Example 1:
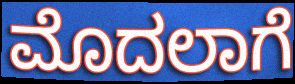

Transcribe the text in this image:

ಮೊದಲಾಗೆ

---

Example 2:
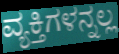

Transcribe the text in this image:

ವ್ಯಕ್ತಿಗಳನ್ನಲ್ಲ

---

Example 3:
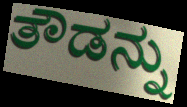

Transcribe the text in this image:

ತೌಡನ್ನು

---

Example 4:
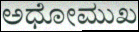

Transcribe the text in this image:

ಅಧೋಮುಖ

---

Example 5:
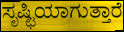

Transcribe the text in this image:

ಸೃಷ್ಟಿಯಾಗುತ್ತಾರೆ